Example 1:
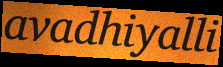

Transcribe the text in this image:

avadhiyalli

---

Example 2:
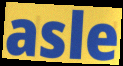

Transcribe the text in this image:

asle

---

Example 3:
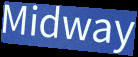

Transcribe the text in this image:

Midway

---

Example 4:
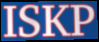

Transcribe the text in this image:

ISKP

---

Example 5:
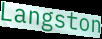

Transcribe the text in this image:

Langston